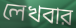
লেখবার